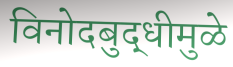
विनोदबुद्धीमुळे